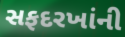
સફદરખાંની